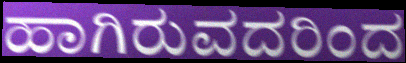
ಹಾಗಿರುವದರಿಂದ